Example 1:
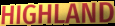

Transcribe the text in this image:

HIGHLAND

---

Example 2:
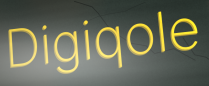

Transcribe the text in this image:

Digiqole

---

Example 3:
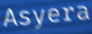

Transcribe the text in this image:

Asyera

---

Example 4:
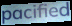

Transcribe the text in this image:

pacified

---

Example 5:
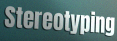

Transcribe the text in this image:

Stereotyping